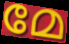
മേ